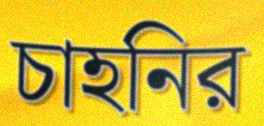
চাহনির